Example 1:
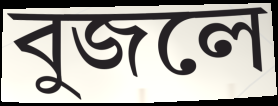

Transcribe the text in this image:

বুজলে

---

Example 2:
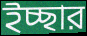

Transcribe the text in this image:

ইচ্ছার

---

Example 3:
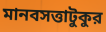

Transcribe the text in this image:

মানবসত্তাটুকুর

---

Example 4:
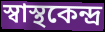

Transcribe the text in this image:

স্বাস্থকেন্দ্র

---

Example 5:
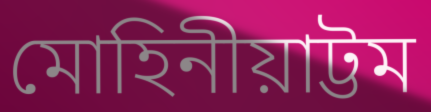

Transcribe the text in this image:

মোহিনীয়াট্টম